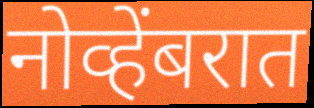
नोव्हेंबरात